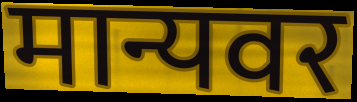
मान्यवर